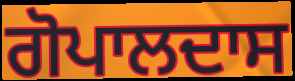
ਗੋਪਾਲਦਾਸ